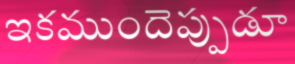
ఇకముందెప్పుడూ